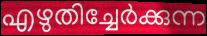
എഴുതിച്ചേർക്കുന്ന